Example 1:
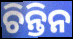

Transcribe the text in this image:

ଚିନ୍ତିନ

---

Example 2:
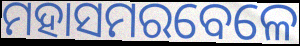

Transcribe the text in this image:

ମହାସମରବେଳେ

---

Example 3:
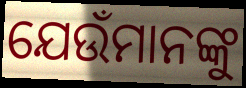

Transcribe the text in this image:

ଯେଉଁମାନଙ୍କୁ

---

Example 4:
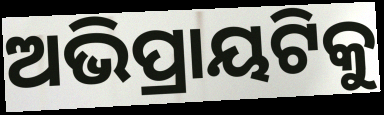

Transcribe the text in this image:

ଅଭିପ୍ରାୟଟିକୁ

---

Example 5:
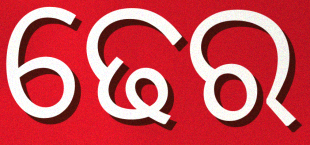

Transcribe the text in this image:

ଢେର